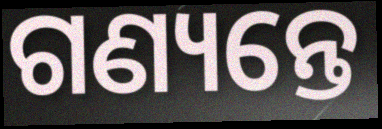
ଗଣ୍ୟନ୍ତେ